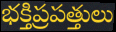
భక్తిప్రపత్తులు